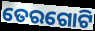
ତେରଗୋଟି